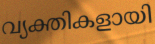
വ്യക്തികളായി